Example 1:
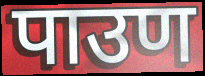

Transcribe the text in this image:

पाउण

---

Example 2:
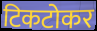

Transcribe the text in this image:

टिकटोकर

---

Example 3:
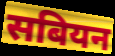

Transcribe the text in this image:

सबियन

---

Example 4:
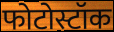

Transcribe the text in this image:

फोटोस्टॉक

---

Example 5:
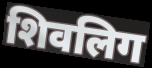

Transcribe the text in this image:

शिवलिग